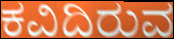
ಕವಿದಿರುವ